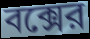
বক্সের